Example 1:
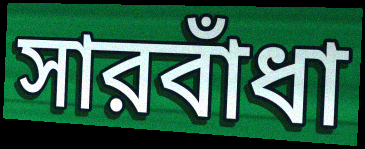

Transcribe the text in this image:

সারবাঁধা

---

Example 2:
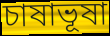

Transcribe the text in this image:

চাষাভূষা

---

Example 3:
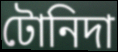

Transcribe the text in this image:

টোনিদা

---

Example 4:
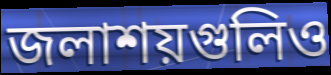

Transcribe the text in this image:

জলাশয়গুলিও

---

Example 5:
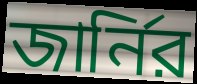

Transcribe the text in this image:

জার্নির